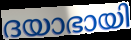
ദയാഭായി